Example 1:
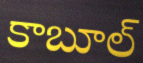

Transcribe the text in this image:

కాబూల్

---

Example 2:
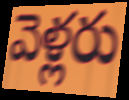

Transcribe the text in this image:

వెళ్లరు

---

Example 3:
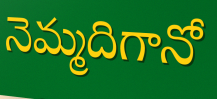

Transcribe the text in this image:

నెమ్మదిగానో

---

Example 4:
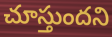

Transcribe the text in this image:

చూస్తుందని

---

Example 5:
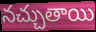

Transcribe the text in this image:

నచ్చుతాయి